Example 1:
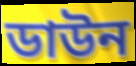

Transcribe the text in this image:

ডাউন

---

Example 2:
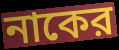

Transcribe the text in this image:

নাকের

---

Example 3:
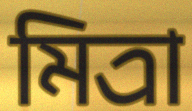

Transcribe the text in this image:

মিত্রা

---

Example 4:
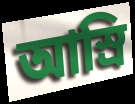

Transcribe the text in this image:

আস্রি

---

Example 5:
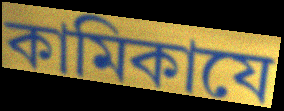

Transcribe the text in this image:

কামিকাযে